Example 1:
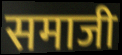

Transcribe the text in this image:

समाजी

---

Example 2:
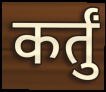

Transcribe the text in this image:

कर्तुं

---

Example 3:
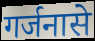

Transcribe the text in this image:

गर्जनासे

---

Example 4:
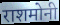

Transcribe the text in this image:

राशमोनी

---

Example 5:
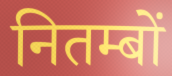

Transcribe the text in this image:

नितम्बों